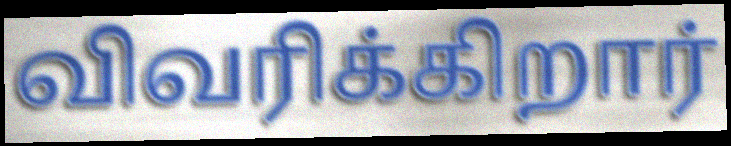
விவரிக்கிறார்